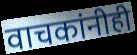
वाचकांनीही